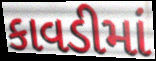
કાવડીમાં